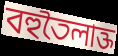
বহুতৈলাক্ত